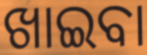
ଖାଇବା